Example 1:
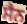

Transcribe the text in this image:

ਸੈਨ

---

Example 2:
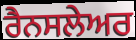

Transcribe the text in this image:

ਰੈਨਸਲੇਅਰ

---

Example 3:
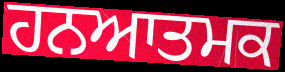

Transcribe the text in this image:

ਹਨਆਤਮਕ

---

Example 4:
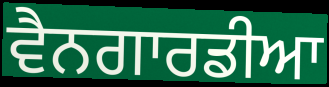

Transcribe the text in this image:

ਵੈਨਗਾਰਡੀਆ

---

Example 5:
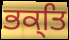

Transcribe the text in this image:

ਭਕ੍ਤਿ